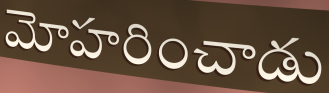
మోహరించాడు